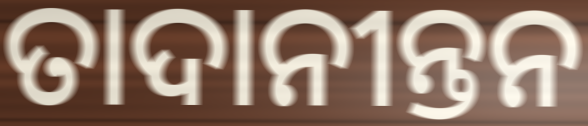
ତାଦାନୀନ୍ତନ